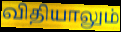
விதியாலும்